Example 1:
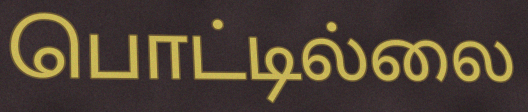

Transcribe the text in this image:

பொட்டில்லை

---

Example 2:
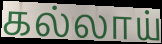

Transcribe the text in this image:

கல்லாய்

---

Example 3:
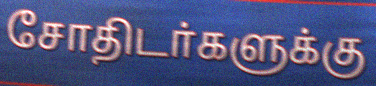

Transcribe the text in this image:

சோதிடர்களுக்கு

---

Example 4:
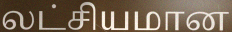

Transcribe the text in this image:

லட்சியமான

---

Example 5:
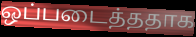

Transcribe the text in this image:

ஒப்படைத்ததாக